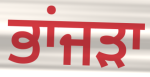
ਭਾਂਜੜਾ